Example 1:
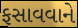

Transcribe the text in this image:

ફસાવવાને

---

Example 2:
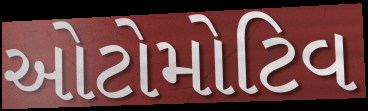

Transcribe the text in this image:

ઓટોમોટિવ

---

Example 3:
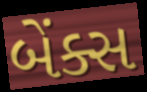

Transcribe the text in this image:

બેંક્સ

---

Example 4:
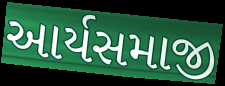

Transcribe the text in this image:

આર્યસમાજી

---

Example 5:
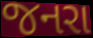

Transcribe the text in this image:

જનરા